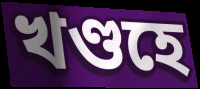
খণ্ডহে